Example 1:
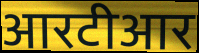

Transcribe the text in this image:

आरटीआर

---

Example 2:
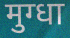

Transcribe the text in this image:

मुग्धा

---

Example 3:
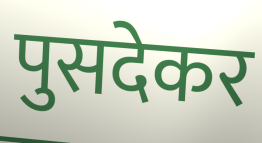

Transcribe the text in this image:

पुसदेकर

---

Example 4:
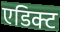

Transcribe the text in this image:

एडिक्ट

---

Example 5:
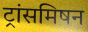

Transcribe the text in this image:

ट्रांसमिषन